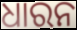
ଧାରନ